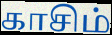
காசிம்